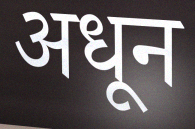
अधून